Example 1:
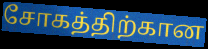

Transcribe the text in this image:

சோகத்திற்கான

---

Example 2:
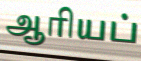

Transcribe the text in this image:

ஆரியப்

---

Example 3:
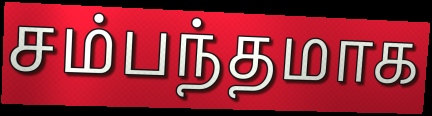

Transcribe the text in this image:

சம்பந்தமாக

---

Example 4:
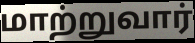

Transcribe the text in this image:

மாற்றுவார்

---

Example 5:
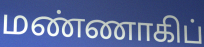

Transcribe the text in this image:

மண்ணாகிப்